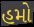
હમો